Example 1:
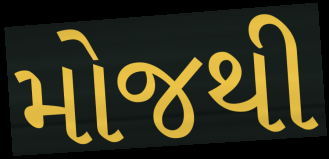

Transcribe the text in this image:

મોજથી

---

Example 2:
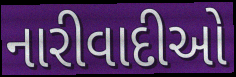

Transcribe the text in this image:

નારીવાદીઓ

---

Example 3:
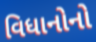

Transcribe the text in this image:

વિધાનોનો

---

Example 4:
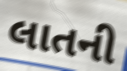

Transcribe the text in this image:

લાતની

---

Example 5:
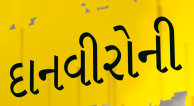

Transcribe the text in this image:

દાનવીરોની